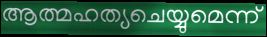
ആത്മഹത്യചെയ്യുമെന്ന്